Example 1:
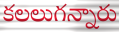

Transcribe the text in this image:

కలలుగన్నారు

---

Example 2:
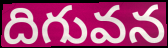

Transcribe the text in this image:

దిగువన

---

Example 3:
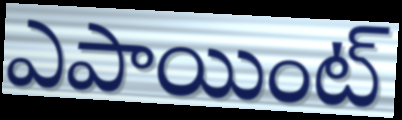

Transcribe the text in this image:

ఎపాయింట్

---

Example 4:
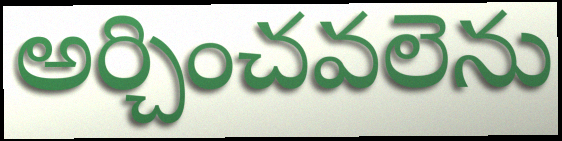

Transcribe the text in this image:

అర్చించవలెను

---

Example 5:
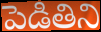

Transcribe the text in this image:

పెడితిని